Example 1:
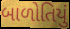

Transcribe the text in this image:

બાળોતિયું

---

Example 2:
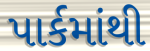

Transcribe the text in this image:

પાર્કમાંથી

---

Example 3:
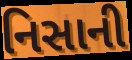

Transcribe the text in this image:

નિસાની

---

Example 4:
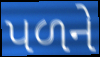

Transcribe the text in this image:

પળને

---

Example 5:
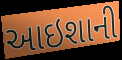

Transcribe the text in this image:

આઇશાની